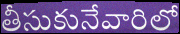
తీసుకునేవారిలో